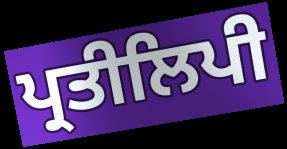
ਪ੍ਰਤੀਲਿਪੀ